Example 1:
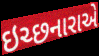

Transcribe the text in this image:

ઇચ્છનારાએ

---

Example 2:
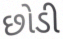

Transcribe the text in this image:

છોડી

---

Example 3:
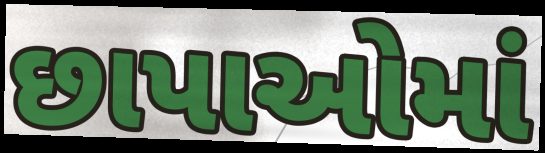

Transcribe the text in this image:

છાપાઓમાં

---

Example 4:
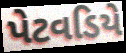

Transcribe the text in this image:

પેટવડિયે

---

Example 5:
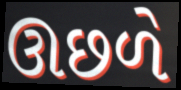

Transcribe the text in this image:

ઊછળે